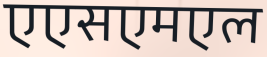
एएसएमएल